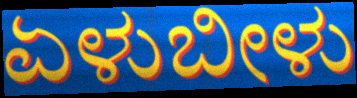
ಏಳುಬೀಳು